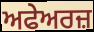
ਅਫੇਅਰਜ਼